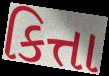
કિત્તા